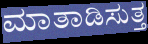
ಮಾತಾಡಿಸುತ್ತ